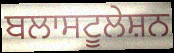
ਬਲਾਸਟੂਲੇਸ਼ਨ